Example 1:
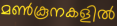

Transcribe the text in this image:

മൺകൂനകളിൽ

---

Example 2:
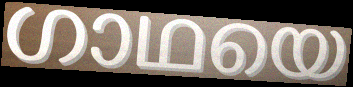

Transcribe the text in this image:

ഗാഥയെ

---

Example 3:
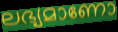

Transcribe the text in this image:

ലഭ്യമാണോ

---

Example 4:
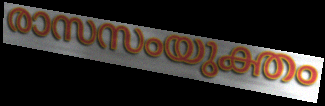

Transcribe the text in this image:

രാസസംയുക്തം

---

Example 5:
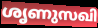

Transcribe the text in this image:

ശൃണുസഖി